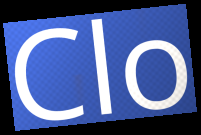
Clo